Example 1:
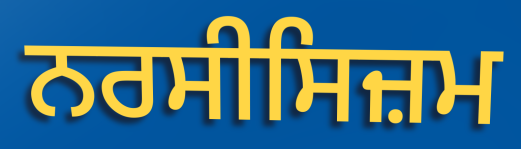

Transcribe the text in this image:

ਨਰਸੀਸਿਜ਼ਮ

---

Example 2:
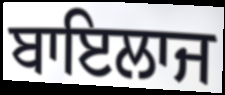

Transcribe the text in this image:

ਬਾਇਲਾਜ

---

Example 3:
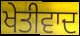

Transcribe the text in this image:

ਖੇਤੀਵਾਦ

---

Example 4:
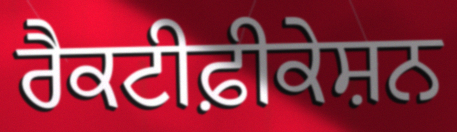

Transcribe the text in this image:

ਰੈਕਟੀਫ਼ੀਕੇਸ਼ਨ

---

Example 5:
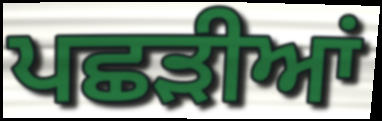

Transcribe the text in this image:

ਪਛੜੀਆਂ